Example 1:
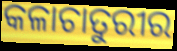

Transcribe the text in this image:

କଳାଚାତୁରୀର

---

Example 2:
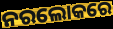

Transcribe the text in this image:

ନରଲୋକରେ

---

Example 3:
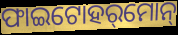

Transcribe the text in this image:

ଫାଇଟୋହର୍‌ମୋନ୍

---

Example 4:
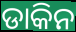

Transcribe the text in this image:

ଡାକିନ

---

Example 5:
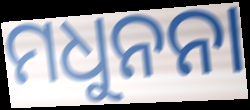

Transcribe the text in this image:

ମଧୁନନା